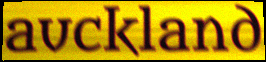
auckland